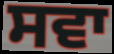
ਸਵਾ